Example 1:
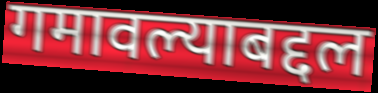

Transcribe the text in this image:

गमावल्याबद्दल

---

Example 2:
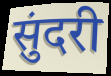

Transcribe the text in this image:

सुंदरी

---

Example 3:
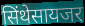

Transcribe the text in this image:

सिंथेसायजर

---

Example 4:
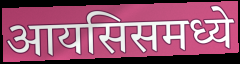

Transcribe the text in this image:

आयसिसमध्ये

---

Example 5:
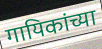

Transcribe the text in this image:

गायिकांच्या